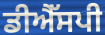
ਡੀਐੱਸਪੀ